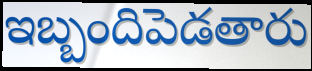
ఇబ్బందిపెడతారు